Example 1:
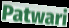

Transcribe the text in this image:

Patwari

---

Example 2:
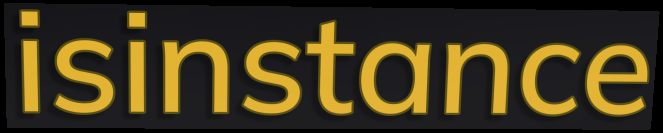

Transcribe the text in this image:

isinstance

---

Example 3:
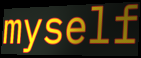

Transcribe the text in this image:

myself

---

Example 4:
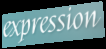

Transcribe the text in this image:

expression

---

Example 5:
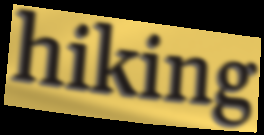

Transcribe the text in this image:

hiking